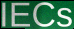
IECs